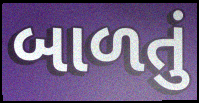
બાળતું